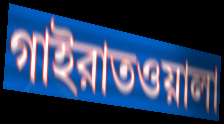
গাইরাতওয়ালা